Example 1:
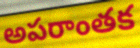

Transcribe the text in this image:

అపరాంతక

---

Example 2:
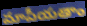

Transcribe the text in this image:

మాపీయతాం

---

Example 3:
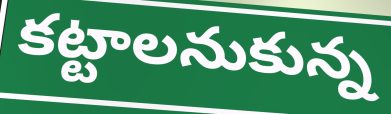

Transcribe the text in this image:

కట్టాలనుకున్న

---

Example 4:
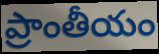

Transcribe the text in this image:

ప్రాంతీయం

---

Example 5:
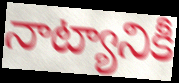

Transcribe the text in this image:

నాట్యానికీ